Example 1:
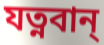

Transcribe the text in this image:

যত্নবান্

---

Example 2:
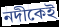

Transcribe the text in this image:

নদীকেই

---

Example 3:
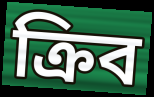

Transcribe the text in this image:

ক্রিব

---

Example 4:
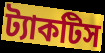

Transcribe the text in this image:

ট্যাকটিস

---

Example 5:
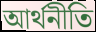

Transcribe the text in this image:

আর্থনীতি